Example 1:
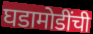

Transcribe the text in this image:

घडामोडींची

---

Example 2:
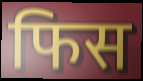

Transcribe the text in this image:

फिस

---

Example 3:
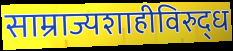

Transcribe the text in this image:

साम्राज्यशाहीविरुद्ध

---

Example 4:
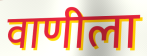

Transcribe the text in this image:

वाणीला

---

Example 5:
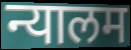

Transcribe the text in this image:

न्यालम